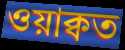
ওয়াক্বত